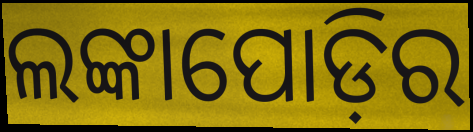
ଲଙ୍କାପୋଡ଼ିର